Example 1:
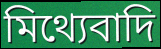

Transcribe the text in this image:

মিথ্যেবাদি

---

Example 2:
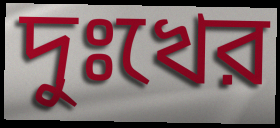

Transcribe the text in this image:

দুঃখের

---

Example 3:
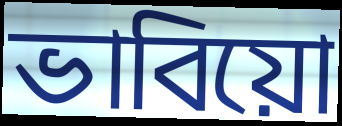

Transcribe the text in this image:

ভাবিয়ো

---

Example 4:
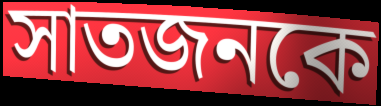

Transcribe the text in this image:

সাতজনকে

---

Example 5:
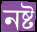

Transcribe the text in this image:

নষ্ট